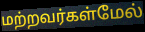
மற்றவர்கள்மேல்